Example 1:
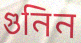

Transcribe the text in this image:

গুনিন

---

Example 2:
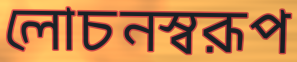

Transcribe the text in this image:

লোচনস্বরূপ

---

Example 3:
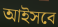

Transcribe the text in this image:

আইসবে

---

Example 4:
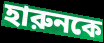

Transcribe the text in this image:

হারুনকে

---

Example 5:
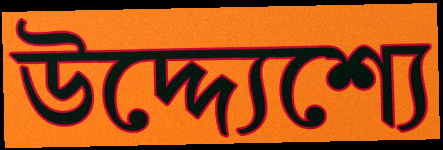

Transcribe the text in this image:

উদ্দ্যেশ্যে